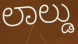
ಲಾಲ್ಡು